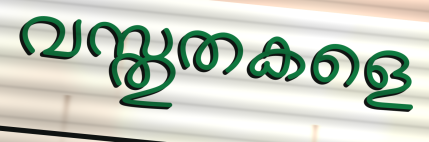
വസ്തുതകളെ